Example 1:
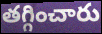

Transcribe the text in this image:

తగ్గించారు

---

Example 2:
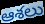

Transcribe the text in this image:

ఆశలు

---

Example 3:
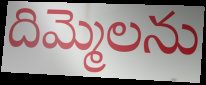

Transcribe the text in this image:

దిమ్మెలను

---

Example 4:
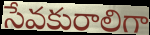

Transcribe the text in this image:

సేవకురాలిగా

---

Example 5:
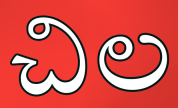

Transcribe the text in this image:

చిల